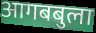
आगबबुला